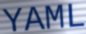
YAML